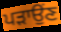
ਪੜਾਉਂਣ